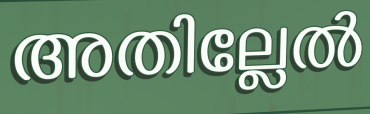
അതില്ലേൽ